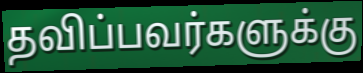
தவிப்பவர்களுக்கு